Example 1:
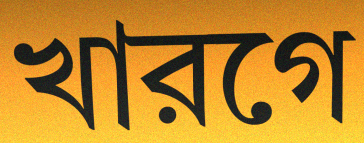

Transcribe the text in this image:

খারগে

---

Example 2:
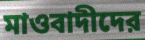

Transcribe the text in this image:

মাওবাদীদের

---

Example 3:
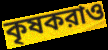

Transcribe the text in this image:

কৃষকরাও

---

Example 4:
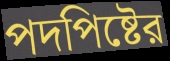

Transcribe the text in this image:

পদপিষ্টের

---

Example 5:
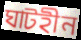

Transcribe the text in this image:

ঘাটহীন